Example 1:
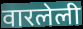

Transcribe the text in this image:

वारलेली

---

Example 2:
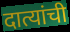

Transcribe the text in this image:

दात्यांची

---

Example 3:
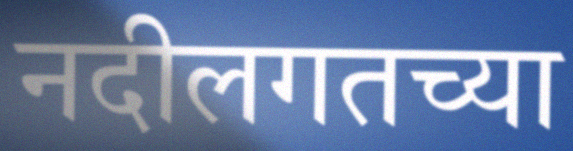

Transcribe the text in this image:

नदीलगतच्या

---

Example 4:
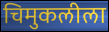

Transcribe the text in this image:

चिमुकलीला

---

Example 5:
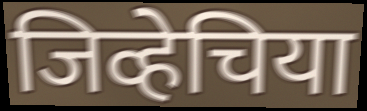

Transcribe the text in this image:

जिव्हेचिया